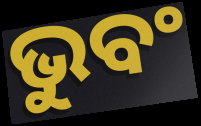
ଭୁବଂ